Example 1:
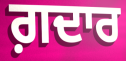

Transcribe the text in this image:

ਗ਼ਦਾਰ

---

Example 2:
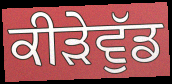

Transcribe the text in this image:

ਕੀੜੇਵੁੱਡ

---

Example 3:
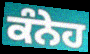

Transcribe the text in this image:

ਕੰਨੇਹ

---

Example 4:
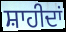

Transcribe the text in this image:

ਸ਼ਾਹੀਦਾਂ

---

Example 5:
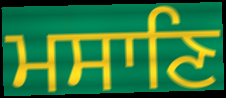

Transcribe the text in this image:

ਮਸਾਣਿ